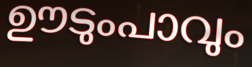
ഊടുംപാവും